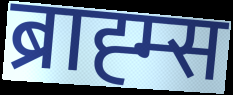
ब्राह्म्स